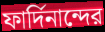
ফার্দিনান্দের